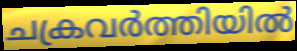
ചക്രവർത്തിയിൽ